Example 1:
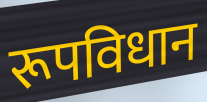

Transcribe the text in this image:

रूपविधान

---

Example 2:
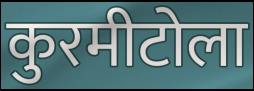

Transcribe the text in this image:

कुरमीटोला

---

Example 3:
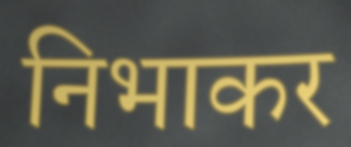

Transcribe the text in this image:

निभाकर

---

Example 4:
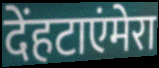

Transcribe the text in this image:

देंहटाएंमेरा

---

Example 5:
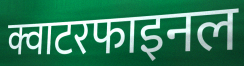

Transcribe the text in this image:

क्वाटरफाइनल